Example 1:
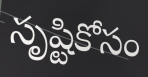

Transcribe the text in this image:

సృష్టికోసం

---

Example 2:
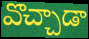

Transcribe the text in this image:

వొచ్చాడా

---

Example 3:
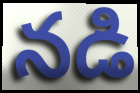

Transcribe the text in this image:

నడి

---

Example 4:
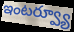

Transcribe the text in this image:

ఇంటర్వ్యూ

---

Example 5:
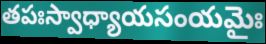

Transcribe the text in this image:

తపఃస్వాధ్యాయసంయమైః